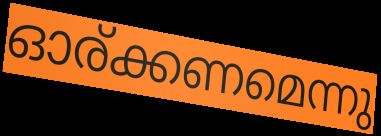
ഓര്ക്കണമെന്നു